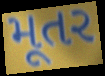
મૂતર